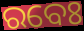
ରବେଃ